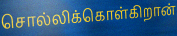
சொல்லிக்கொள்கிறான்